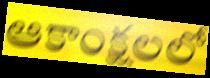
ఆకాంక్షలలో